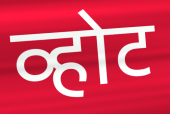
व्होट